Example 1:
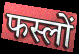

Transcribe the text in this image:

फस्लों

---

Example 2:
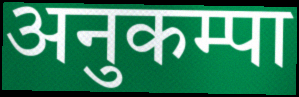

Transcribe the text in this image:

अनुकम्‍पा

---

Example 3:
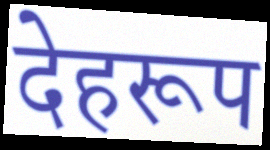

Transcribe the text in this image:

देहरूप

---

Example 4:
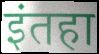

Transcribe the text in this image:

इंतहा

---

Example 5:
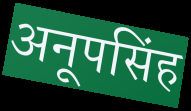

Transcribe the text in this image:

अनूपसिंह